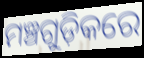
ମଞ୍ଚଗୁଡ଼ିକରେ